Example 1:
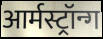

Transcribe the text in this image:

आर्मस्ट्रॉन्ग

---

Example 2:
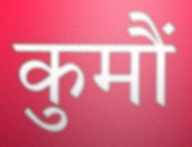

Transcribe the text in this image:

कुमौं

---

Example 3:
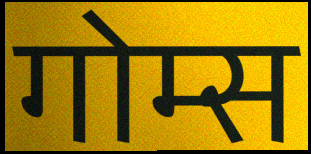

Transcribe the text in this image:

गोम्स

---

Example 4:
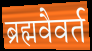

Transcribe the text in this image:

ब्रह्मवैवर्त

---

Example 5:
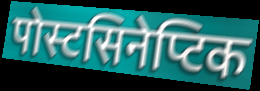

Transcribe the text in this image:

पोस्टसिनेप्टिक